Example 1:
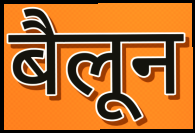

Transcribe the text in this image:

बैलून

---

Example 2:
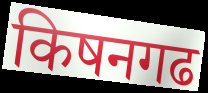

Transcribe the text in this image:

किषनगढ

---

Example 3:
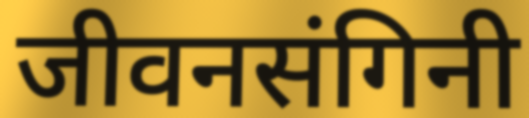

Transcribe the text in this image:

जीवनसंगिनी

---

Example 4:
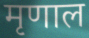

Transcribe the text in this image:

मृणाल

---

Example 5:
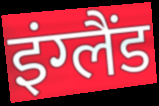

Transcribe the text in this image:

इंग्‍लैंड